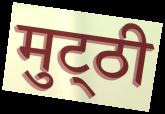
मुट्‌ठी